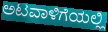
ಅಟವಾಳಿಗೆಯಲ್ಲಿ